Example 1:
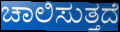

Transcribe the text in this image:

ಚಾಲಿಸುತ್ತದೆ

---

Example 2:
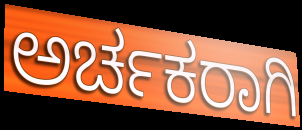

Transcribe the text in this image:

ಅರ್ಚಕರಾಗಿ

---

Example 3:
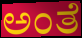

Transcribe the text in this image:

ಅಂತೆ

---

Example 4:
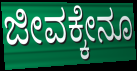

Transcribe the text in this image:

ಜೀವಕ್ಕೇನೂ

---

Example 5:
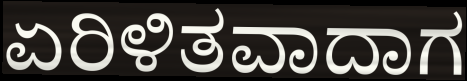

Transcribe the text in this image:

ಏರಿಳಿತವಾದಾಗ